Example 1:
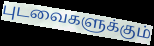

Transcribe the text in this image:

புடவைகளுக்கும்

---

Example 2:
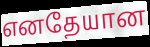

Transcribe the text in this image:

எனதேயான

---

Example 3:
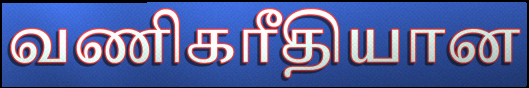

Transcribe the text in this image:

வணிகரீதியான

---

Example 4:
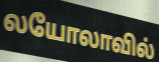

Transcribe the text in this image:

லயோலாவில்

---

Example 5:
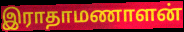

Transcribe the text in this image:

இராதாமணாளன்